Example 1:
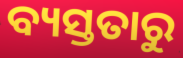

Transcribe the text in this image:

ବ୍ୟସ୍ତତାରୁ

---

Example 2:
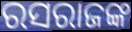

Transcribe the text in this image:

ରସରାଜଙ୍କ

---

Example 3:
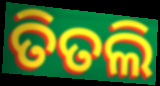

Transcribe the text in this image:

ତିତଲି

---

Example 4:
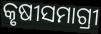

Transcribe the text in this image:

କୃଷୀସମାଗ୍ରୀ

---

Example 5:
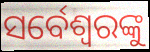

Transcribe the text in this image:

ସର୍ବେଶ୍ୱରଙ୍କୁ